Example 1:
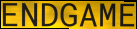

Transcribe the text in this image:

ENDGAME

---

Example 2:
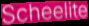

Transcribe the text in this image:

Scheelite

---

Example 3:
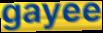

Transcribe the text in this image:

gayee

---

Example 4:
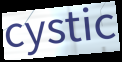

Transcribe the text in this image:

cystic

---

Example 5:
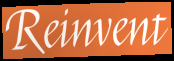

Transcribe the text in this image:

Reinvent